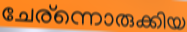
ചേര്ന്നൊരുക്കിയ